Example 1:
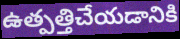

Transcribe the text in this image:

ఉత్పత్తిచేయడానికి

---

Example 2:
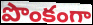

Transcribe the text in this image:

పొంకంగా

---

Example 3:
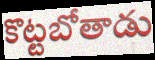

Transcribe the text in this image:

కొట్టబోతాడు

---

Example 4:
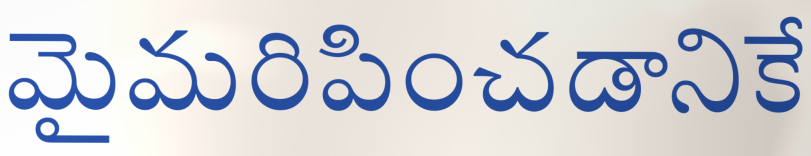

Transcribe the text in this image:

మైమరిపించడానికే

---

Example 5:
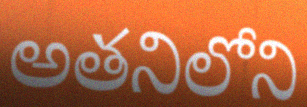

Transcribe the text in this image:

అతనిలోని